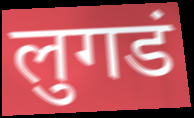
लुगडं